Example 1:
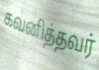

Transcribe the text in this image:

கவனித்தவர்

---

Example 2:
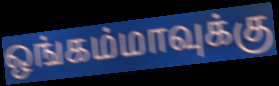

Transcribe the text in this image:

ஒங்கம்மாவுக்கு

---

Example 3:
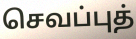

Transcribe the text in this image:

செவப்புத்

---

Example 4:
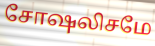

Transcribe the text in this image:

சோஷலிசமே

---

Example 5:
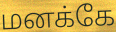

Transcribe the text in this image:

மனக்கே